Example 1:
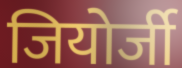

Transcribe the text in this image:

जियोर्जी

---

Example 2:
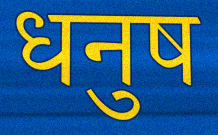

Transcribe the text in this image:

धनुष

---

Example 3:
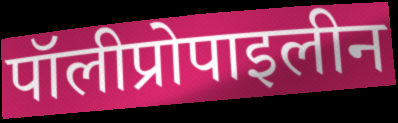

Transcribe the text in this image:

पॉलीप्रोपाइलीन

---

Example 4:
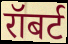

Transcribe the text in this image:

रॉबर्ट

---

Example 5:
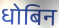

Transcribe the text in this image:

धोबिन